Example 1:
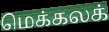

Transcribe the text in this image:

மெக்கலக்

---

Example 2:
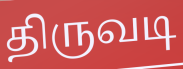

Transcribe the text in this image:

திருவடி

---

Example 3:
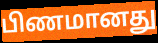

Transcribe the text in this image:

பிணமானது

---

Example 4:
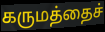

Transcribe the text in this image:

கருமத்தைச்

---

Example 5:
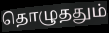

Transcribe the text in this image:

தொழுததும்